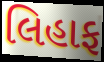
લિહાફ